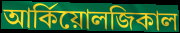
আর্কিয়োলজিকাল